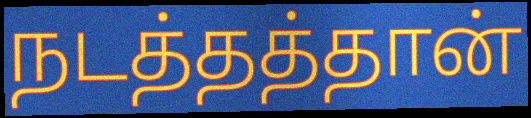
நடத்தத்தான்